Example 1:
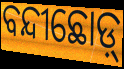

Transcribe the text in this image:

ବନ୍ଦୀଛୋଡ଼୍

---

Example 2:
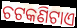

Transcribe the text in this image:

ଚଟକଣିଟାଏ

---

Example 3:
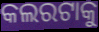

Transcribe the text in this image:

କଲରଟାକୁ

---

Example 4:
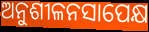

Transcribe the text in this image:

ଅନୁଶୀଳନସାପେକ୍ଷ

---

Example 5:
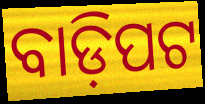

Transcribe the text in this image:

ବାଡ଼ିପଟ